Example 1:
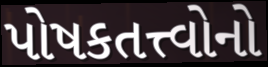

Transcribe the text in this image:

પોષકતત્ત્વોનો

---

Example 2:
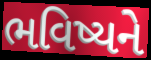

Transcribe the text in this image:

ભવિષ્યને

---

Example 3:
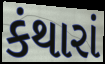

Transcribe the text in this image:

કંથારાં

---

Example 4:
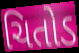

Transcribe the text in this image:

ચિતોડ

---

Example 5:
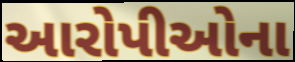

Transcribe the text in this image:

આરોપીઓના